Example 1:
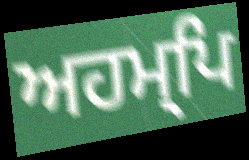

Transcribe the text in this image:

ਅਹਮ੍ਪਿ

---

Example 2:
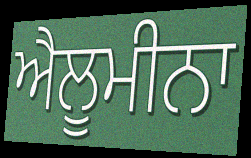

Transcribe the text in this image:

ਐਲੂਮੀਨਾ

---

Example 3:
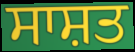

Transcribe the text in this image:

ਸਾਸ਼ਤ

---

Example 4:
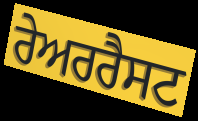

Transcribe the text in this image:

ਰੇਅਰਰੈਸਟ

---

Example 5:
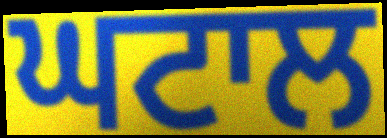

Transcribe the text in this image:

ਘਟਾਲ